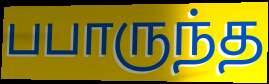
பபாருந்த